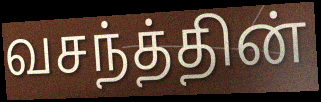
வசந்த்தின்